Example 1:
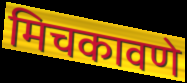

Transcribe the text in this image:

मिचकावणे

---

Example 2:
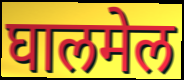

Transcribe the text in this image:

घालमेल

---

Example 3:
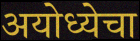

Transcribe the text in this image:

अयोध्येचा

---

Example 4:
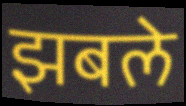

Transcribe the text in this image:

झबले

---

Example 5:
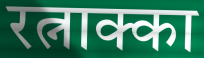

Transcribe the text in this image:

रत्नाक्का